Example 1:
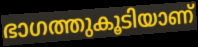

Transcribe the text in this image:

ഭാഗത്തുകൂടിയാണ്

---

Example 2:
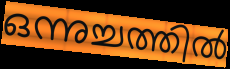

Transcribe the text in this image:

ഒന്നുച്ചത്തിൽ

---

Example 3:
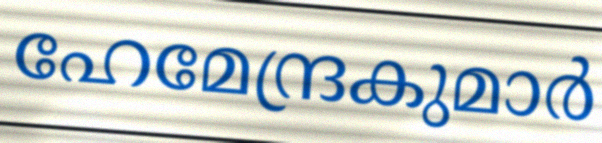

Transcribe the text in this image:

ഹേമേന്ദ്രകുമാർ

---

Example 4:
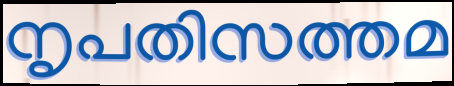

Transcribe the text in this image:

നൃപതിസത്തമ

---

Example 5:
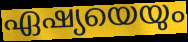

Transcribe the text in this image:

ഏഷ്യയെയും